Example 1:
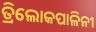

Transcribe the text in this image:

ତ୍ରିଲୋକପାଳିନୀ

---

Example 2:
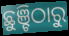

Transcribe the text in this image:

ଛୁଞ୍ଚିଠାରୁ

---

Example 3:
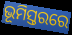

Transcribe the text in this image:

ଭୂମିସ୍ତରରେ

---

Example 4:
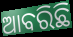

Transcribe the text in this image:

ଆବରିଛି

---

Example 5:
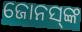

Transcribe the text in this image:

ଜୋନସ୍‌ଙ୍କ